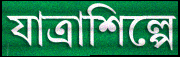
যাত্রাশিল্পে